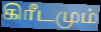
கிரீடமும்